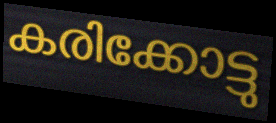
കരിക്കോട്ടു